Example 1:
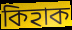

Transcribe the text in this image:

কিহাক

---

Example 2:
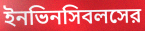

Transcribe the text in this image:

ইনভিনসিবলসের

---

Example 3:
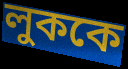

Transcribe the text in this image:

লুককে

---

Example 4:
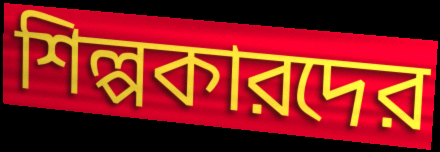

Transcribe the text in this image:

শিল্পকারদের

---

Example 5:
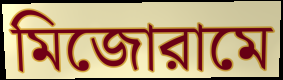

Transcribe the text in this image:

মিজোরামে